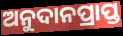
ଅନୁଦାନପ୍ରାପ୍ତ